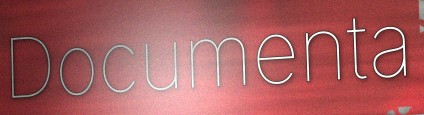
Documenta